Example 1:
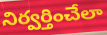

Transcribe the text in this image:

నిర్వర్తించేలా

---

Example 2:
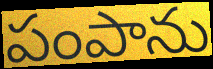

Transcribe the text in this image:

పంపాను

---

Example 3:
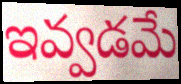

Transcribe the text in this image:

ఇవ్వడమే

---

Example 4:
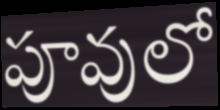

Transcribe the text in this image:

పూవులో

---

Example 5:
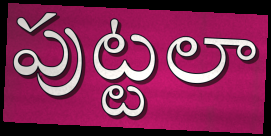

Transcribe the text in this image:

పుట్టలా